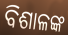
ବିଶାଳଙ୍କ